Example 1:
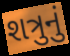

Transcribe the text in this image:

શત્રુનું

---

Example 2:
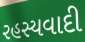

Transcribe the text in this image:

રહસ્યવાદી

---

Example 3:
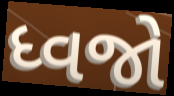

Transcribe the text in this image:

ધ્વજો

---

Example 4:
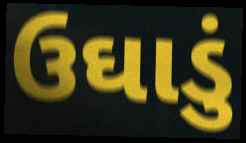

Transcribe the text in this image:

ઉઘાડું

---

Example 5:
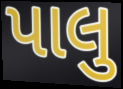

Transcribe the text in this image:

પાલુ